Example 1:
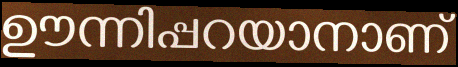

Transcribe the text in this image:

ഊന്നിപ്പറയാനാണ്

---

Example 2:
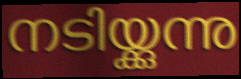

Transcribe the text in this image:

നടിയ്ക്കുന്നു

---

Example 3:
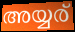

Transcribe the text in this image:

അയ്യര്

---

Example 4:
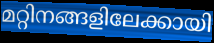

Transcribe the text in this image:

മറ്റിനങ്ങളിലേക്കായി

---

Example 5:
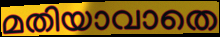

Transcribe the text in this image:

മതിയാവാതെ